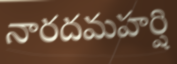
నారదమహర్షి